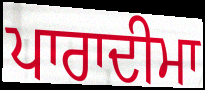
ਪਾਰਾਦੀਮਾ